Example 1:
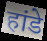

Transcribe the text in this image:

हांडे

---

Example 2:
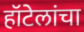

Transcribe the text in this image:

हॉटेलांचा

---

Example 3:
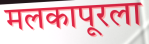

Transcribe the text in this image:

मलकापूरला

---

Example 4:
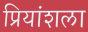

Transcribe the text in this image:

प्रियांशला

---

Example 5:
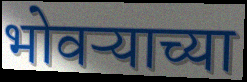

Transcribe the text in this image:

भोवऱ्याच्या